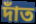
দাঁত